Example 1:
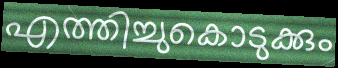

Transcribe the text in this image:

എത്തിച്ചുകൊടുക്കും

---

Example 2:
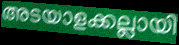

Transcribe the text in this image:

അടയാളക്കല്ലായി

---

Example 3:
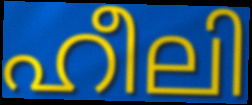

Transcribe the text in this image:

ഹീലി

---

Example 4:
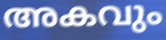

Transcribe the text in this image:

അകവും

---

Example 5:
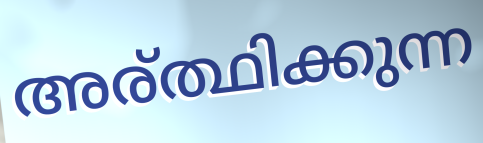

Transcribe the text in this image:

അര്ത്ഥിക്കുന്ന